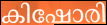
കിഷോരി